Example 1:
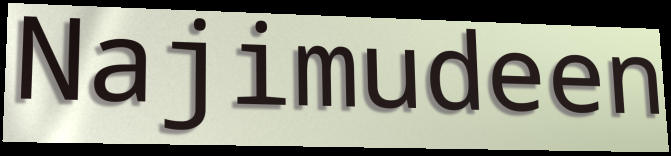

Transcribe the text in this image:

Najimudeen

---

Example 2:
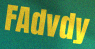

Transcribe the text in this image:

FAdvdy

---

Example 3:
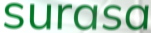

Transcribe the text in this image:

surasa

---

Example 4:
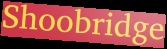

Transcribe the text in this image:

Shoobridge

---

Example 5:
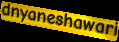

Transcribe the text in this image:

dnyaneshawari